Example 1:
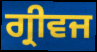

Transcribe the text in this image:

ਗ੍ਰੀਵਜ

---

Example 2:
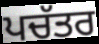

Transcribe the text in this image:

ਪਚੱਤਰ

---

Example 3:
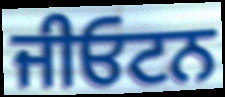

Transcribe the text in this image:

ਜੀਓਟਨ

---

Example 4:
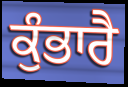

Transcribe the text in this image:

ਕੁੰਭਾਰੈ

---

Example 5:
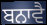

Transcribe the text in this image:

ਬਨਾਵੈ